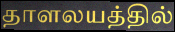
தாளலயத்தில்